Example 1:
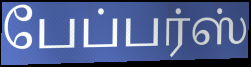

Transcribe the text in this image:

பேப்பர்ஸ்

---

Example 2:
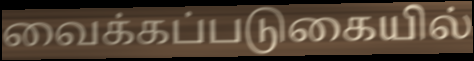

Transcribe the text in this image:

வைக்கப்படுகையில்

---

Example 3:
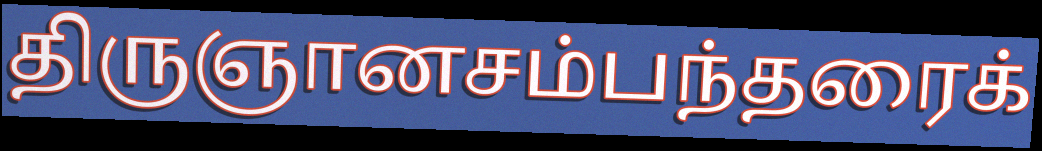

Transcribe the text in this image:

திருஞானசம்பந்தரைக்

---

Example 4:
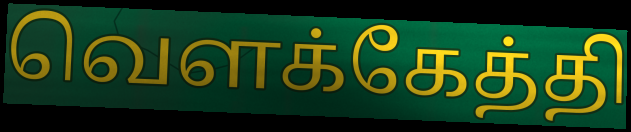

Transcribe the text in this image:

வெளக்கேத்தி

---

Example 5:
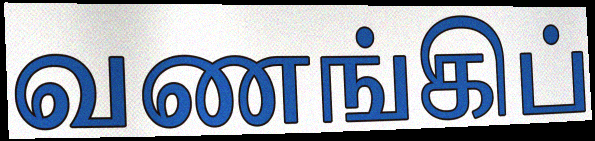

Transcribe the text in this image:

வணங்கிப்